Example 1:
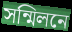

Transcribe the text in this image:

সন্মিলনে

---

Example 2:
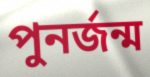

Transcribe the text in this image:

পুনৰ্জন্ম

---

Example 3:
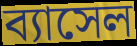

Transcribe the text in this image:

ব্যাসেল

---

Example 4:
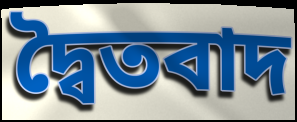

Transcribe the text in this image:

দ্বৈতবাদ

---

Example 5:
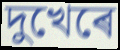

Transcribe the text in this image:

দুখেৰে